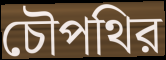
চৌপথির